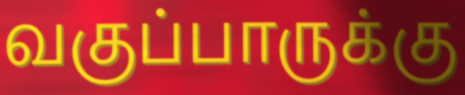
வகுப்பாருக்கு